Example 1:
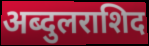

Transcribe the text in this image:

अब्दुलराशिद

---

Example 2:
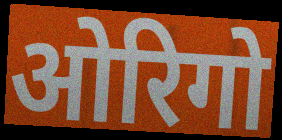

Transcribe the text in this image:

ओरिगो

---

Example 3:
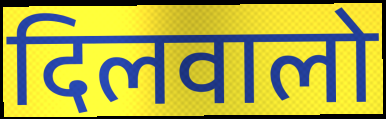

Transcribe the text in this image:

दिलवालो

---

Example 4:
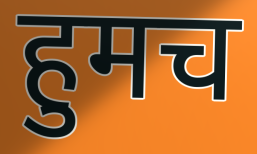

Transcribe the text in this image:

हुमच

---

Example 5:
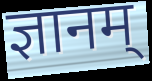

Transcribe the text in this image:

ज्ञानम्